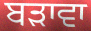
ਬੜਾਵਾ